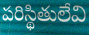
పరిస్థితులేవి